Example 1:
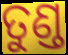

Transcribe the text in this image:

ତୁଣ୍ଡ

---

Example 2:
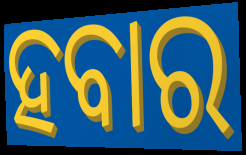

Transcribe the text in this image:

ହବାର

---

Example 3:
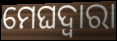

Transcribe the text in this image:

ମେଘଦ୍ୱାରା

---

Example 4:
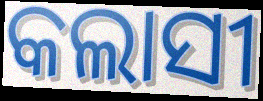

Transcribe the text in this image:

କଲାସୀ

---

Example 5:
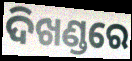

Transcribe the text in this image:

ଦିଖଣ୍ଡରେ